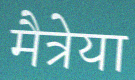
मैत्रेया